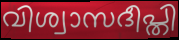
വിശ്വാസദീപ്തി